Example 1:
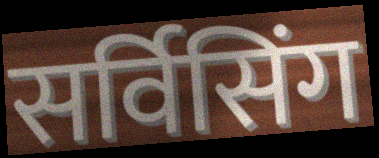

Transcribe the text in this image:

सर्विसिंग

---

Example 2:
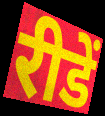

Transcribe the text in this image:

रीडें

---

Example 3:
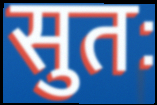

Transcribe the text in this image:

सुतः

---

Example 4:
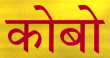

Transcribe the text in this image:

कोबो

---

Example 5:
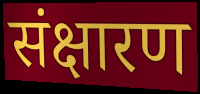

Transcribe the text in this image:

संक्षारण